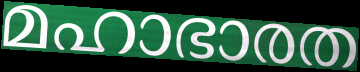
മഹാഭാരത